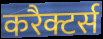
करैक्टर्स